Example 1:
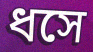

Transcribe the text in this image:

ধসে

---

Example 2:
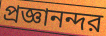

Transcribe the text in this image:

প্রজ্ঞানন্দর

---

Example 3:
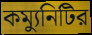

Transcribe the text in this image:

কম্যুনিটির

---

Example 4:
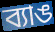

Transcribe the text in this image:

ব্যাঙ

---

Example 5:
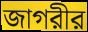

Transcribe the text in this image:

জাগরীর